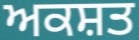
ਅਕਸ਼ਤ